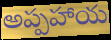
అప్పహాయ